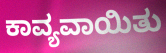
ಕಾವ್ಯವಾಯಿತು